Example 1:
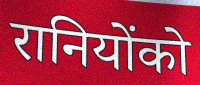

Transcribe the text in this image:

रानियोंको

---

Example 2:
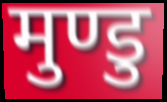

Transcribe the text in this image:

मुण्डु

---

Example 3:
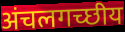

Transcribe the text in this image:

अंचलगच्छीय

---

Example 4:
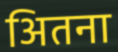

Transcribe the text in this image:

अितना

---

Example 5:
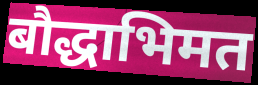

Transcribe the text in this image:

बौद्धाभिमत